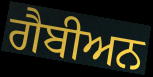
ਗੈਬੀਅਨ